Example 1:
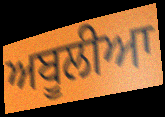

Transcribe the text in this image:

ਅਬੂਲੀਆ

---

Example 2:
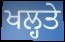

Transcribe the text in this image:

ਖਲ੍ਹਤੇ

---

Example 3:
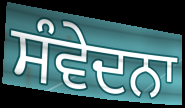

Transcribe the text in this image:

ਸੰਵੇਦਨਾ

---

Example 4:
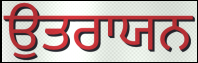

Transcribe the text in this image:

ਉਤਰਾਯਨ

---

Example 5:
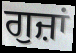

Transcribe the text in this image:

ਗੁਜ਼ਾਂ